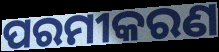
ପରମୀକରଣ